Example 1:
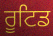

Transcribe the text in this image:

ਰੂਟਿਡ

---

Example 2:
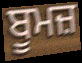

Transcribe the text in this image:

ਬੂਮਜ਼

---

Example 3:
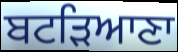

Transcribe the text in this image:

ਬਟੜਿਆਣਾ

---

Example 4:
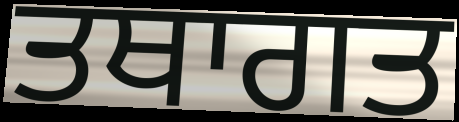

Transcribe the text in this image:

ਤਥਾਗਤ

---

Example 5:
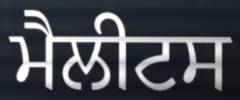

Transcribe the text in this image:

ਮੈਲੀਟਸ